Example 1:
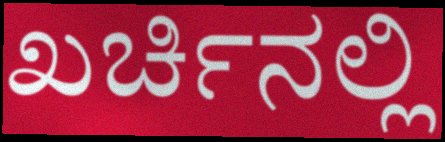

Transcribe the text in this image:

ಖರ್ಚಿನಲ್ಲಿ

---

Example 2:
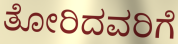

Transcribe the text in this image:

ತೋರಿದವರಿಗೆ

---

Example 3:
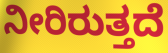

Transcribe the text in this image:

ನೀರಿರುತ್ತದೆ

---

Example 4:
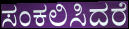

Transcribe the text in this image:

ಸಂಕಲಿಸಿದರೆ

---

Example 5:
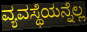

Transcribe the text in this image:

ವ್ಯವಸ್ಥೆಯನ್ನೆಲ್ಲ